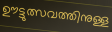
ഊട്ടുത്സവത്തിനുള്ള